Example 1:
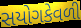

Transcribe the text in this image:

સયોગકેવળી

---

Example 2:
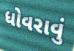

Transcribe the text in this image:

ધોવરાવું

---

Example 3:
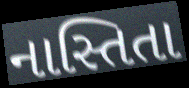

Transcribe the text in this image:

નાસ્તિતા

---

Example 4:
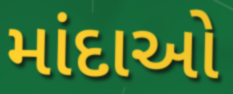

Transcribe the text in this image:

માંદાઓ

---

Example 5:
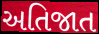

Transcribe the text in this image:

અતિજાત